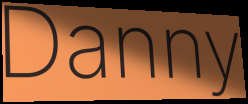
Danny